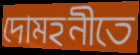
দোমহনীতে